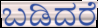
ಬಡಿದರೆ